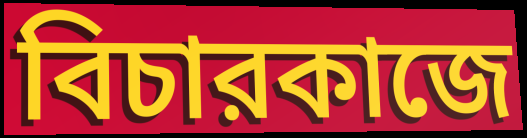
বিচারকাজে